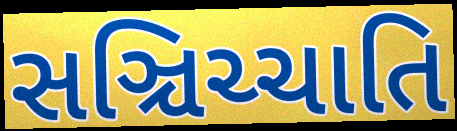
સઞ્ચિચ્ચાતિ